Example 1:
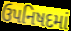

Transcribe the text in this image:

ઉપનિષદમાં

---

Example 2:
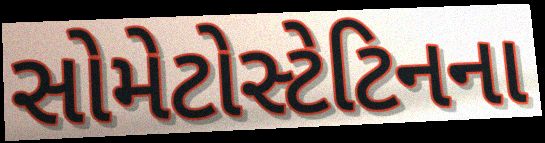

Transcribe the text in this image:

સોમેટોસ્ટેટિનના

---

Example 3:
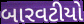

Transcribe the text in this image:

બારવટીયો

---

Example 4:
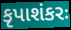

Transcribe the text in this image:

કૃપાશંકરઃ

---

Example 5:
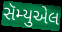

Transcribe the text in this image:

સૅમ્યુએલ